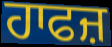
ਹਾਫਜ਼